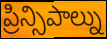
ప్రిన్సిపాల్ను